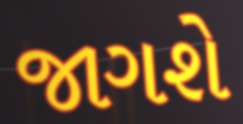
જાગશે